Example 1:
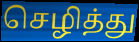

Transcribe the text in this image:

செழித்து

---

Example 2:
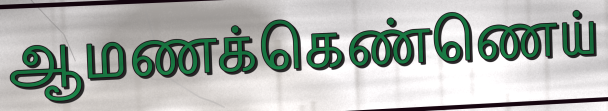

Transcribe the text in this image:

ஆமணக்கெண்ணெய்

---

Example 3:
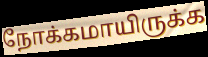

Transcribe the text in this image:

நோக்கமாயிருக்க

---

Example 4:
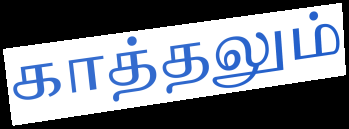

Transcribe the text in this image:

காத்தலும்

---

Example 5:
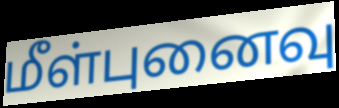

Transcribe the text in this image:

மீள்புனைவு